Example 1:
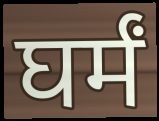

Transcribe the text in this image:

घर्मं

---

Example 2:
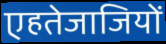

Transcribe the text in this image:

एहतेजाजियों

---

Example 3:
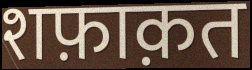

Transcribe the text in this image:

शफ़ाक़त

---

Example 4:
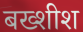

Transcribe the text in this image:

बख्शीश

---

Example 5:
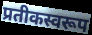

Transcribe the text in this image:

प्रतीकस्वरूप